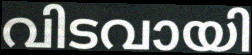
വിടവായി